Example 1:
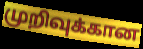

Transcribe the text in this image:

முறிவுக்கான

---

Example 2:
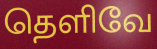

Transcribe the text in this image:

தெளிவே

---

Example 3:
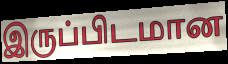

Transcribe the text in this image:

இருப்பிடமான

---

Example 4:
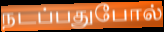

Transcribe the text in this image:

நடப்பதுபோல்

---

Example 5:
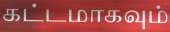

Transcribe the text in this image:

கட்டமாகவும்